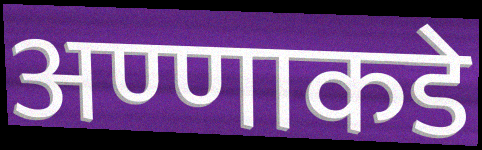
अण्णाकडे